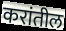
करांतील